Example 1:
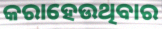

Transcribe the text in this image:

କରାହେଉଥିବାର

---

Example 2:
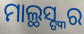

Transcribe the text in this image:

ମାଲ୍ଥସ୍ଙ୍କର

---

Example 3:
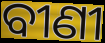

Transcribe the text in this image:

ବୀଣୀ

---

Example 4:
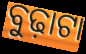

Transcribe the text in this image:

ବୁଢ଼ାଟା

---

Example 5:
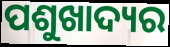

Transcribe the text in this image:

ପଶୁଖାଦ୍ୟର